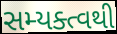
સમ્યક્ત્વથી